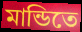
মান্ডিতে